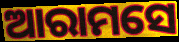
ଆରାମସେ